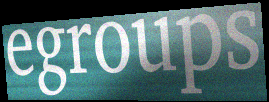
egroups